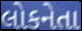
લોકનેતા